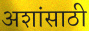
अशांसाठी